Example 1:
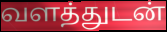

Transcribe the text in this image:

வளத்துடன்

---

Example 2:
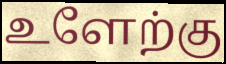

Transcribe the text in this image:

உளேற்கு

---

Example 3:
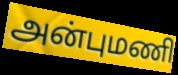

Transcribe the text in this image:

அன்புமணி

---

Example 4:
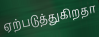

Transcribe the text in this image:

ஏற்படுத்துகிறதா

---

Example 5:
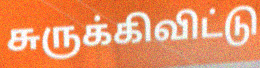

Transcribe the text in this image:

சுருக்கிவிட்டு